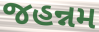
જહન્નમ